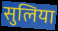
सुलिया